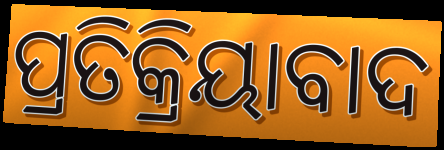
ପ୍ରତିକ୍ରିୟାବାଦ